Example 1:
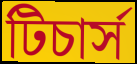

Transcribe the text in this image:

টিচার্স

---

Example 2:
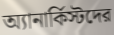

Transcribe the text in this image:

অ্যানার্কিস্টদের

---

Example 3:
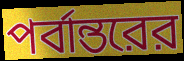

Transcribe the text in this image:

পর্বান্তরের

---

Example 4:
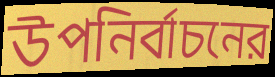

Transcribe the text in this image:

উপনির্বাচনের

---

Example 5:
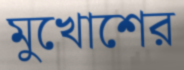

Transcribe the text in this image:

মুখোশের